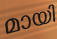
മായി